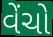
વેંચો